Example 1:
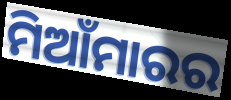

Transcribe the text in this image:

ମିଆଁମାରର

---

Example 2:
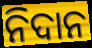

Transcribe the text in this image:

ନିଦାନ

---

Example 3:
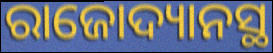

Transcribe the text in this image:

ରାଜୋଦ୍ୟାନସ୍ଥ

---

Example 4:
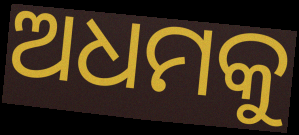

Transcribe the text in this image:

ଅଧମକୁ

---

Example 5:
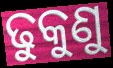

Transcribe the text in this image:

ଢୁକୁଣୁ